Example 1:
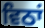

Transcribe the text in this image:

ਵਿਠਾਂ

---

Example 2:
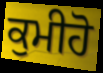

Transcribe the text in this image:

ਕੁਮੀਹੋ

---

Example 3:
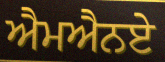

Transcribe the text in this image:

ਐਮਐਨਏ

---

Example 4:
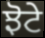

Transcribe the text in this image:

ਝੋਟੇ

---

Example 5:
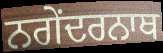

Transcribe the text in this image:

ਨਗੇਂਦਰਨਾਥ